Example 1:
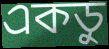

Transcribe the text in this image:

একডু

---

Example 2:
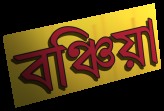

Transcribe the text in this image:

বঞ্চিয়া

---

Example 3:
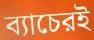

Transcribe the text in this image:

ব্যাচেরই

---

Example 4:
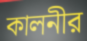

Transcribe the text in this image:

কালনীর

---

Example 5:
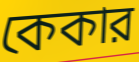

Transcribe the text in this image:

কেকার